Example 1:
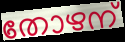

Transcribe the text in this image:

തോഴന്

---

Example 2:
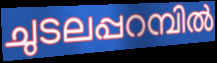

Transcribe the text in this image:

ചുടലപ്പറമ്പിൽ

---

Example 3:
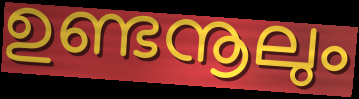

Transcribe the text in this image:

ഉണ്ടനൂലും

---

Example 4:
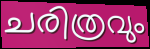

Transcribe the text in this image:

ചരിത്രവും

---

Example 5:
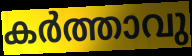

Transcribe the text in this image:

കർത്താവു